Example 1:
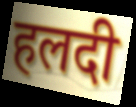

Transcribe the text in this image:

हलदी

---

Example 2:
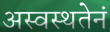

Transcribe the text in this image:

अस्वस्थतेनं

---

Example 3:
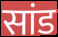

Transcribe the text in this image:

सांड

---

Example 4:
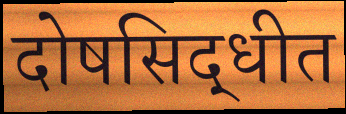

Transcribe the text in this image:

दोषसिद्धीत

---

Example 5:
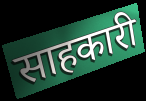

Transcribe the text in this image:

साहकारी